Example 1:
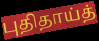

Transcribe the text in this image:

புதிதாய்த்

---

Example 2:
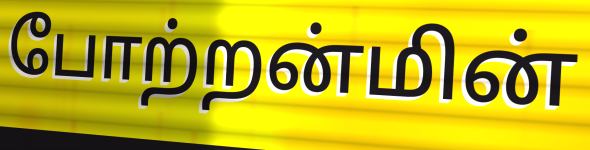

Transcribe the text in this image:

போற்றன்மின்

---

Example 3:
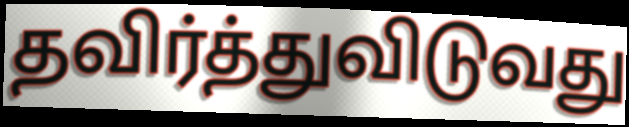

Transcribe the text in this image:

தவிர்த்துவிடுவது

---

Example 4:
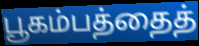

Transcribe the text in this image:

பூகம்பத்தைத்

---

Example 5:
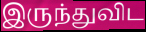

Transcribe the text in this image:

இருந்துவிட